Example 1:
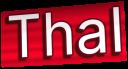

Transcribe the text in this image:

Thal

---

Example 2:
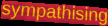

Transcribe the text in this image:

sympathising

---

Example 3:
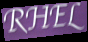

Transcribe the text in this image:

RHEL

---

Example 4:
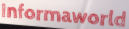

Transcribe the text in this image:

Informaworld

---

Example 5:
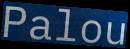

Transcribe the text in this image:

Palou